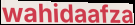
wahidaafza